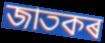
জাতকৰ